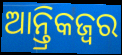
ଆନ୍ତ୍ରିକଜ୍ଵର